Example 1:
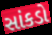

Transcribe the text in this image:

સાંકડો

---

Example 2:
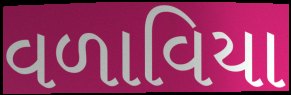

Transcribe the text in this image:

વળાવિયા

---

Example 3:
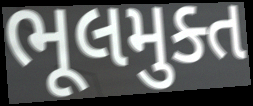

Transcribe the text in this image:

ભૂલમુક્ત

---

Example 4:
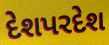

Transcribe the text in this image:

દેશપરદેશ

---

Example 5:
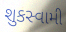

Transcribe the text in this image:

શુકસ્વામી